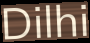
Dilhi